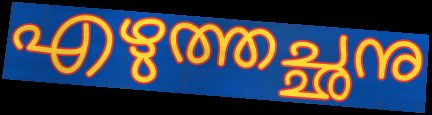
എഴുത്തച്ഛനു